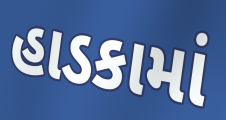
હાડકામાં